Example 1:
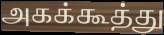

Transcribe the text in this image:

அகக்கூத்து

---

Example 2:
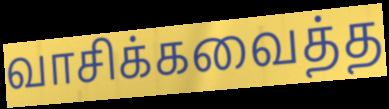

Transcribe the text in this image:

வாசிக்கவைத்த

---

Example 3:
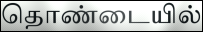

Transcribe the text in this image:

தொண்டையில்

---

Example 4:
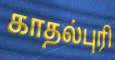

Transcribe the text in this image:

காதல்புரி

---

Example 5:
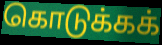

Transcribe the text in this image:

கொடுக்கக்